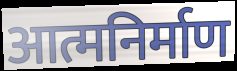
आत्मनिर्माण